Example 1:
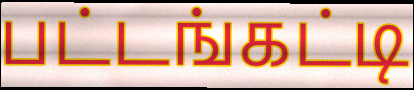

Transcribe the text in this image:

பட்டங்கட்டி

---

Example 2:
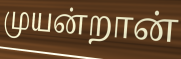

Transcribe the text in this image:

முயன்றான்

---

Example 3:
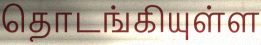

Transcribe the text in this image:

தொடங்கியுள்ள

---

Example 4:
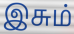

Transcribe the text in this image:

இசும்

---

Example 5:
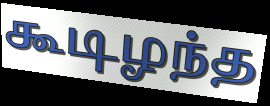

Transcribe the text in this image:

கூடிழந்த